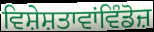
ਵਿਸ਼ੇਸ਼ਤਾਵਾਂਵਿੰਡੋਜ਼